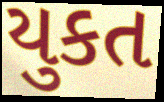
યુકત